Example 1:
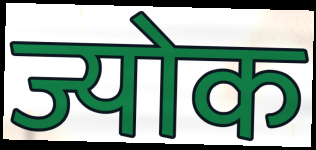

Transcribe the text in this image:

ज्योक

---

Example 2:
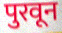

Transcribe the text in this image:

पुरवून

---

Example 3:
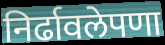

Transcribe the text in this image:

निर्ढावलेपणा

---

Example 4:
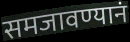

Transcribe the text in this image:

समजावण्यानं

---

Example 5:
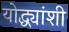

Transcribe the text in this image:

योद्ध्यांशी